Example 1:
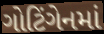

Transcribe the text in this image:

ગોટિંગેનમાં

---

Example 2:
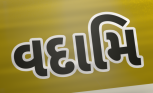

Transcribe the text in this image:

વદામિ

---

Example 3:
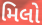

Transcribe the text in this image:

મિલો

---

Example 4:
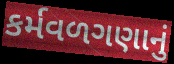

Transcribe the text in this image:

કર્મવળગણાનું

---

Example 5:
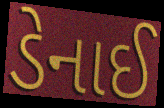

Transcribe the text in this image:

ડેનાઈ